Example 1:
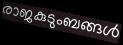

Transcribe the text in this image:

രാജകുടുംബങ്ങൾ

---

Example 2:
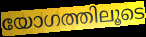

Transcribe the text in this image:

യോഗത്തിലൂടെ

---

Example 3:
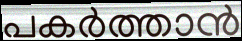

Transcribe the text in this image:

പകർത്താൻ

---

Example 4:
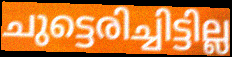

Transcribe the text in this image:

ചുട്ടെരിച്ചിട്ടില്ല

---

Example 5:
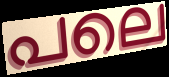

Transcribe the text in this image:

പലെ